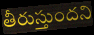
తీరుస్తుందని